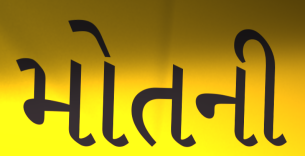
મોતની